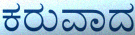
ಕರುವಾದ